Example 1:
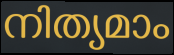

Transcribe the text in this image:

നിത്യമാം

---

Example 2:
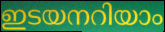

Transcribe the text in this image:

ഇടയനറിയാം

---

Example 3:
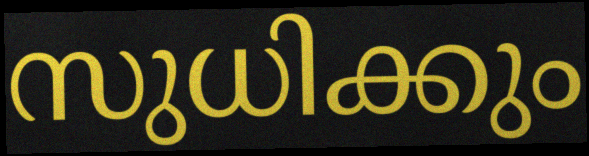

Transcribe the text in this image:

സുധിക്കും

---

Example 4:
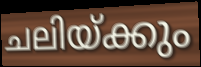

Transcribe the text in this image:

ചലിയ്ക്കും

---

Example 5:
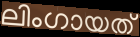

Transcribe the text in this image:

ലിംഗായത്